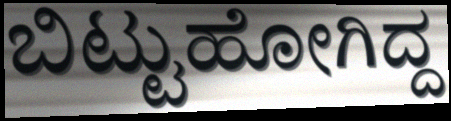
ಬಿಟ್ಟುಹೋಗಿದ್ದ